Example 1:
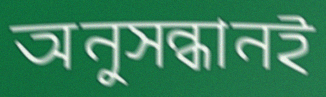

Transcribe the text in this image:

অনুসন্ধানই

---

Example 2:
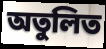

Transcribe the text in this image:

অতুলিত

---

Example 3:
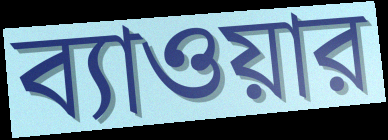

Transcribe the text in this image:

ব্যাওয়ার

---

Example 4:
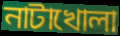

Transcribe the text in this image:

নাটাখোলা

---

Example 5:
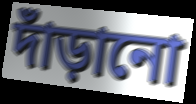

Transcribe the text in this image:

দাঁড়ানো